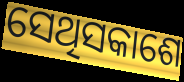
ସେଥିସକାଶେ